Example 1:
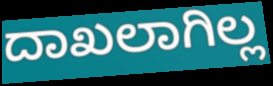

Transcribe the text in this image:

ದಾಖಲಾಗಿಲ್ಲ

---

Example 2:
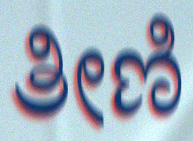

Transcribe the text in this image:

ತೀಣಿ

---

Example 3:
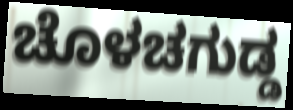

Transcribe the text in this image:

ಚೊಳಚಗುಡ್ಡ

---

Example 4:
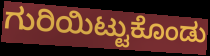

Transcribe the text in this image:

ಗುರಿಯಿಟ್ಟುಕೊಂಡು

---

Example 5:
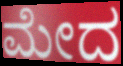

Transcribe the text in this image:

ಮೇದ